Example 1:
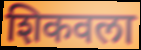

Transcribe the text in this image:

शिकवला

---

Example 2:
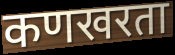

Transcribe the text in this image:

कणखरता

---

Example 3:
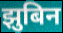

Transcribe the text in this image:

झुबिन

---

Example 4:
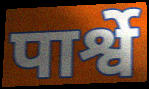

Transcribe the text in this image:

पार्श्वे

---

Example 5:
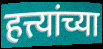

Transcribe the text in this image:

हत्त्यांच्या